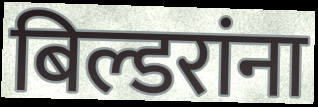
बिल्डरांना